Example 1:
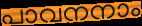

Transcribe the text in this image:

പാവനനാം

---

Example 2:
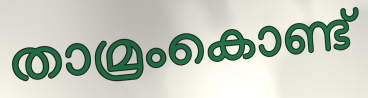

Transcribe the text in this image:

താമ്രംകൊണ്ട്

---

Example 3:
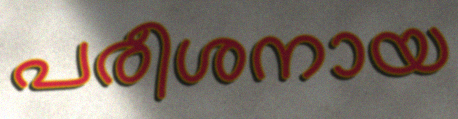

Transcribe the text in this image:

പരീശനായ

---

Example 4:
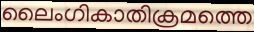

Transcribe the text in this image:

ലൈംഗികാതിക്രമത്തെ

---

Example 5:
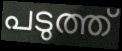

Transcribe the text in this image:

പടുത്ത്